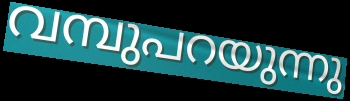
വമ്പുപറയുന്നു